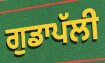
ਗੁਡਾਪੱਲੀ